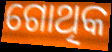
ଗୋଥିକ